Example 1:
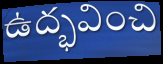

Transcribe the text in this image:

ఉద్భవించి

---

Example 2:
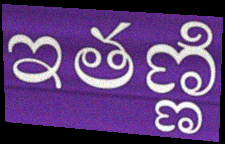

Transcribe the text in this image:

ఇతణ్ణి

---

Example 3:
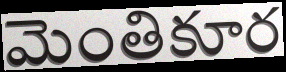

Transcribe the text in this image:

మెంతికూర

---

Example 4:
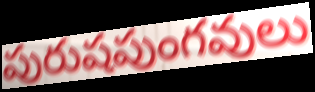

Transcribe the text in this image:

పురుషపుంగవులు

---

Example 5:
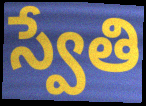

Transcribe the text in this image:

స్వేతి